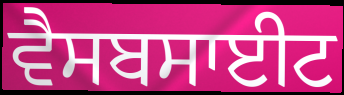
ਵੈਸਬਸਾਈਟ